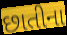
છાતીના